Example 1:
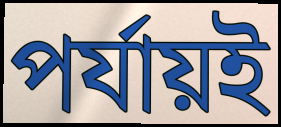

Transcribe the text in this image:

পর্যায়ই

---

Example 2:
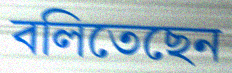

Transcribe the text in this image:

বলিতেছেন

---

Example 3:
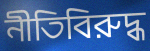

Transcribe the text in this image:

নীতিবিরুদ্ধ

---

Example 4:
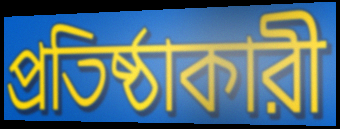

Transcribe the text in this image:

প্রতিষ্ঠাকারী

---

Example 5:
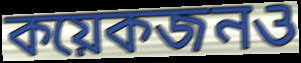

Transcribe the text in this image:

কয়েকজনও